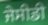
ਜੇਸੀਡੀ